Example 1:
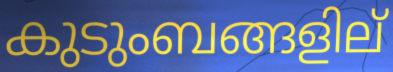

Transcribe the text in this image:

കുടുംബങ്ങളില്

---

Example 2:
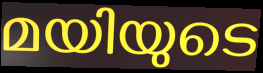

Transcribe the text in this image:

മയിയുടെ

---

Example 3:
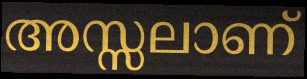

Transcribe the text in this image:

അസ്സലാണ്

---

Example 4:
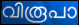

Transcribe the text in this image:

വിരൂപാ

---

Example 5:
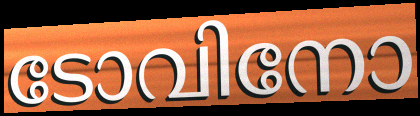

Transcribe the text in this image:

ടോവിനോ